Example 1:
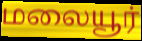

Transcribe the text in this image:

மலையூர்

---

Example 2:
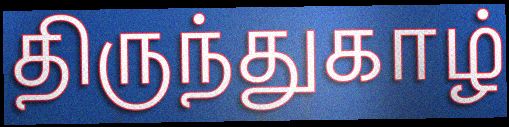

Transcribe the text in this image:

திருந்துகாழ்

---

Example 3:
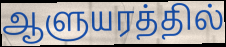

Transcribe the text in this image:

ஆளுயரத்தில்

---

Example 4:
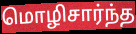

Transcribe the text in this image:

மொழிசார்ந்த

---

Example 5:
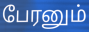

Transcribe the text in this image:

பேரனும்